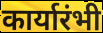
कार्यारंभी